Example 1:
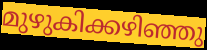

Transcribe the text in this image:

മുഴുകിക്കഴിഞ്ഞു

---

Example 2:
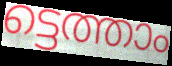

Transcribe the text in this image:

ട്ടെത്താം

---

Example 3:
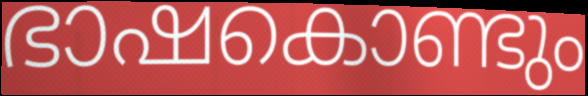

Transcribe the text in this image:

ഭാഷകൊണ്ടും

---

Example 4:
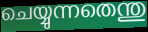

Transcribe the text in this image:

ചെയ്യുന്നതെന്തു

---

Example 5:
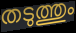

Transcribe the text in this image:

തടുത്തും